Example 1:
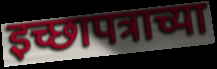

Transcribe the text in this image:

इच्छापत्राच्या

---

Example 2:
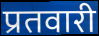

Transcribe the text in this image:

प्रतवारी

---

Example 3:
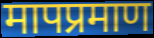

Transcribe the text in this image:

मापप्रमाण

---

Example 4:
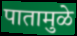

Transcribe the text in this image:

पातामुळे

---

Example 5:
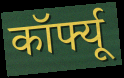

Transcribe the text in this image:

कॉर्फ्यू